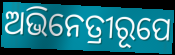
ଅଭିନେତ୍ରୀରୂପେ